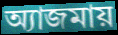
অ্যাজমায়